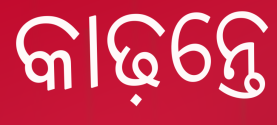
କାଢ଼ନ୍ତେ